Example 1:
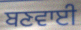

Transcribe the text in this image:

ਬਣਵਾਈ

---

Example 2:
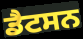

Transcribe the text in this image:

ਡੈਟਸਨ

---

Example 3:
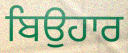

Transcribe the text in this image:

ਬਿਉਹਾਰ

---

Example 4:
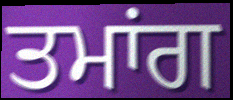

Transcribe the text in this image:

ਤਮਾਂਗ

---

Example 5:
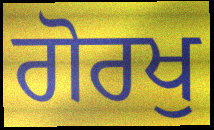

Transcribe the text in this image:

ਗੋਰਖੁ